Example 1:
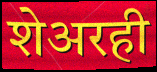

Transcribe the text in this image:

शेअरही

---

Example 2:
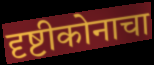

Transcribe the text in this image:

दृष्टीकोनाचा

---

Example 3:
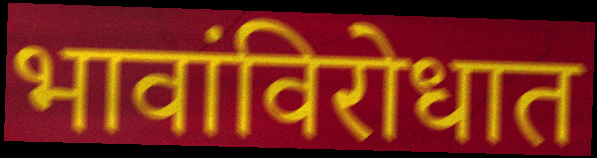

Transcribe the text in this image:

भावांविरोधात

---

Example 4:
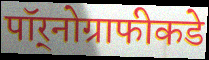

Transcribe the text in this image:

पॉर्नोग्राफीकडे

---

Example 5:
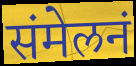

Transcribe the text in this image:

संमेलनं